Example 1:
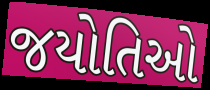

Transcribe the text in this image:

જયોતિઓ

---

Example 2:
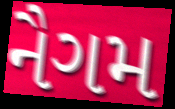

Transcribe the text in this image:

નૈગમ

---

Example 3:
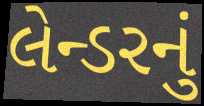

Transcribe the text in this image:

લેન્ડરનું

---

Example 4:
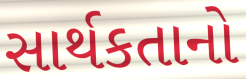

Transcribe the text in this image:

સાર્થકતાનો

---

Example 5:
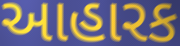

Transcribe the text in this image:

આહારક